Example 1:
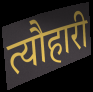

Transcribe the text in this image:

त्यौहारी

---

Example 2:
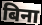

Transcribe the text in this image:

बिना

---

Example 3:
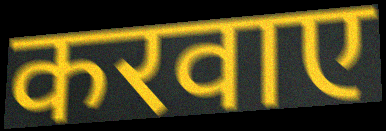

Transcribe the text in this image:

करवाए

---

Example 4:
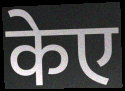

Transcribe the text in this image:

केए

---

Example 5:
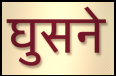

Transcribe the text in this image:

घुसने